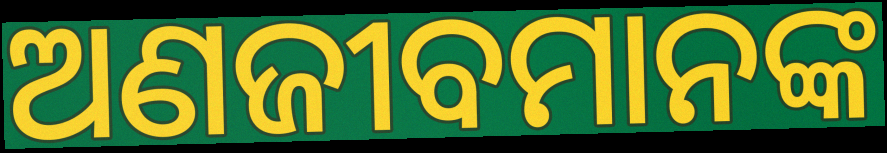
ଅଣଜୀବମାନଙ୍କ